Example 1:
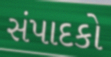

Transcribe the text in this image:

સંપાદકો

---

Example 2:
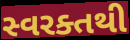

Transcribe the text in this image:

સ્વરક્તથી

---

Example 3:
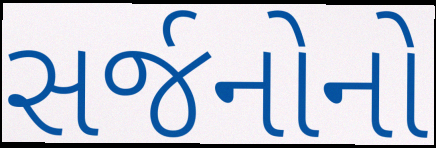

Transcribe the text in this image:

સર્જનોનો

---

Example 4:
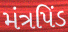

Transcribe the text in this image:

મંત્રપિંડ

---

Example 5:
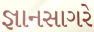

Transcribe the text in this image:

જ્ઞાનસાગરે